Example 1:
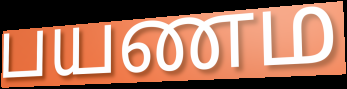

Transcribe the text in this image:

பயணம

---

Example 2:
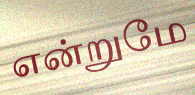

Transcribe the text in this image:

என்றுமே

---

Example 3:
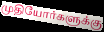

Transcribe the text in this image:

முதியோர்களுக்கு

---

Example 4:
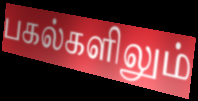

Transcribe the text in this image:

பகல்களிலும்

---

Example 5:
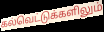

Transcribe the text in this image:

கல்வெட்டுக்களிலும்